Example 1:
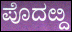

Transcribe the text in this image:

ಪೊದೞ್ದ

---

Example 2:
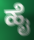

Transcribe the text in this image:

ಹೈ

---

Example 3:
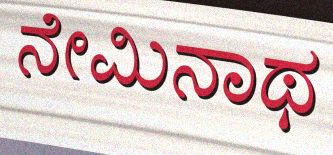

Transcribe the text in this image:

ನೇಮಿನಾಥ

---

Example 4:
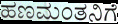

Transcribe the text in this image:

ಹಣಮಂತನಿಗೆ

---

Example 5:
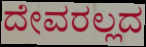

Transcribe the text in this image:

ದೇವರಲ್ಲದ